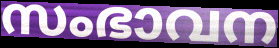
സംഭാവന